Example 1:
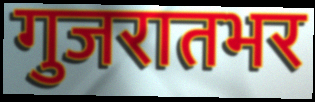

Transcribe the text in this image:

गुजरातभर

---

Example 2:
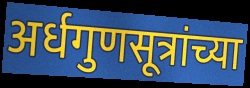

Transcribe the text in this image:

अर्धगुणसूत्रांच्या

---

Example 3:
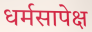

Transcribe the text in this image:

धर्मसापेक्ष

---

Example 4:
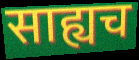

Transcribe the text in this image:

साह्यच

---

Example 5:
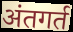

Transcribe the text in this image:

अंतगर्त